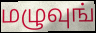
மழுவுங்